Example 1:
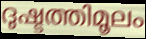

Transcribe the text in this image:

ദുഷ്ടത്തിമൂലം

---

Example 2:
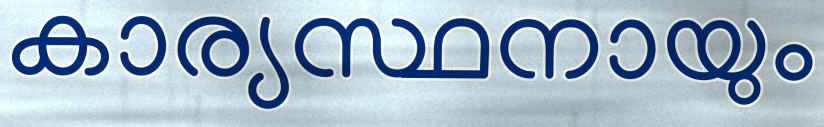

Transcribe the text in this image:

കാര്യസ്ഥനായും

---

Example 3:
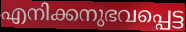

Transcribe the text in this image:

എനിക്കനുഭവപ്പെട്ട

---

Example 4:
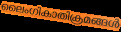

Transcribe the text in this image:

ലൈംഗികാതിക്രമങ്ങൾ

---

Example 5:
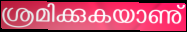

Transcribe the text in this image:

ശ്രമിക്കുകയാണു്